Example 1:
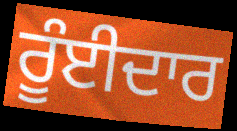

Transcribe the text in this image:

ਰੂੰਈਦਾਰ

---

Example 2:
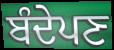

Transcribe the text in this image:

ਬੰਦੇਪਣ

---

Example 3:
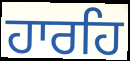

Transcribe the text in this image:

ਹਾਰਹਿ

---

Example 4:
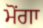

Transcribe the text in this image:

ਮੋਂਗਾ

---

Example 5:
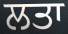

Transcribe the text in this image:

ਲਤਾ